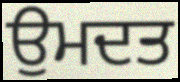
ਉਮਦਤ